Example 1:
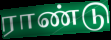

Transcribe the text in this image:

ராண்டு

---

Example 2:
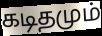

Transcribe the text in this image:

கடிதமும்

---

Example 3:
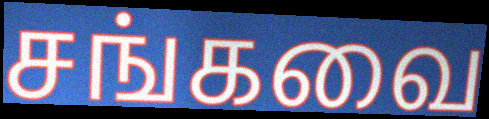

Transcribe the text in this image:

சங்கவை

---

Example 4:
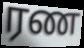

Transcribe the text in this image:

ரண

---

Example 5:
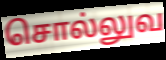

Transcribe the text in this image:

சொல்லுவ